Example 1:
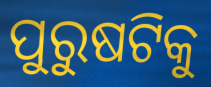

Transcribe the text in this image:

ପୁରୁଷଟିକୁ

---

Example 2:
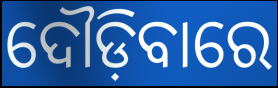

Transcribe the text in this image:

ଦୌଡ଼ିବାରେ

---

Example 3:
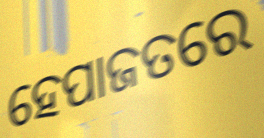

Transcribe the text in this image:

ହେପାଜତରେ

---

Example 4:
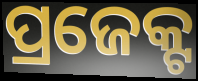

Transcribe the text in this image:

ପ୍ରଜେକ୍ଟ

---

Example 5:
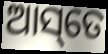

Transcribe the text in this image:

ଆସ୍‌ତେ